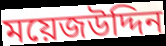
ময়েজউদ্দিন